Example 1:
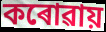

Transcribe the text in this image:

কৰোৱায়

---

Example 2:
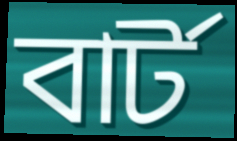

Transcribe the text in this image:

বাৰ্ট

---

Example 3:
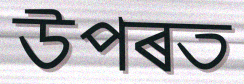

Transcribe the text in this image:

উপৰত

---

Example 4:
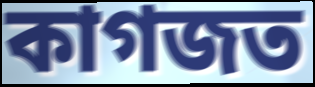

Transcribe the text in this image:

কাগজত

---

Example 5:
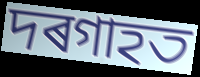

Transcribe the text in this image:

দৰগাহত